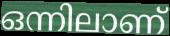
ഒന്നിലാണ്